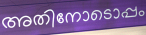
അതിനോടൊപ്പം